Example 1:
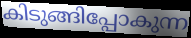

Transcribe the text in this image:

കിടുങ്ങിപ്പോകുന്ന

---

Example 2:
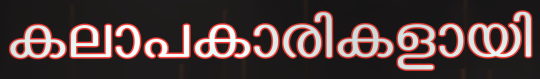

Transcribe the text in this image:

കലാപകാരികളായി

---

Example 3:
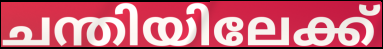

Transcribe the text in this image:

ചന്തിയിലേക്ക്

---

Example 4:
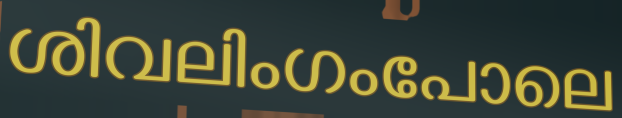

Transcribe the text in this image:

ശിവലിംഗംപോലെ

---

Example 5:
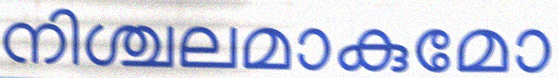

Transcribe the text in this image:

നിശ്ചലമാകുമോ